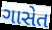
ગાસેત